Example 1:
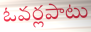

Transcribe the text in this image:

ఓవర్లపాటు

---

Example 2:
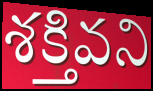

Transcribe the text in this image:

శక్తివని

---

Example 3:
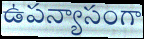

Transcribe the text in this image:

ఉపన్యాసంగా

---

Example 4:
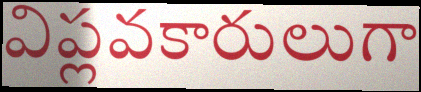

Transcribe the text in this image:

విప్లవకారులుగా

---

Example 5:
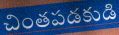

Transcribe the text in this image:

చింతపడకుడి